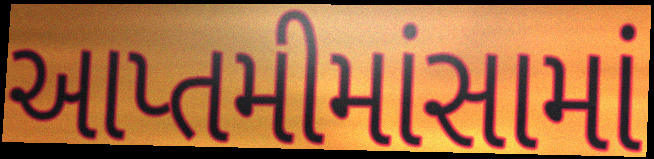
આપ્તમીમાંસામાં